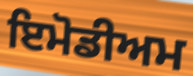
ਇਮੋਡੀਅਮ